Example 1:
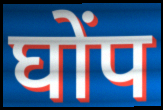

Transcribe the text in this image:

घोंप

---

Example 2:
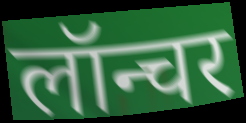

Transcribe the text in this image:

लॉन्चर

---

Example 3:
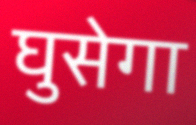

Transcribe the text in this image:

घुसेगा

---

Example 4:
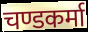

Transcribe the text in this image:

चण्डकर्मा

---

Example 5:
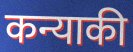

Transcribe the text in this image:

कन्याकी